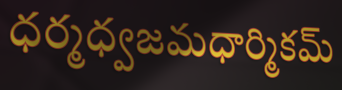
ధర్మధ్వజమధార్మికమ్